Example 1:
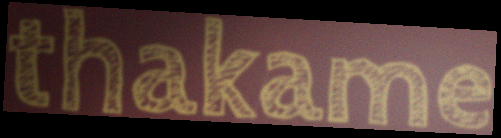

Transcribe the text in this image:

thakame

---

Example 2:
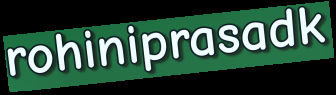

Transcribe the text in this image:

rohiniprasadk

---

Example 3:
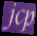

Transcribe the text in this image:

jcp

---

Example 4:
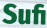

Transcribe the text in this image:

Sufi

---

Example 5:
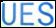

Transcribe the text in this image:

UES